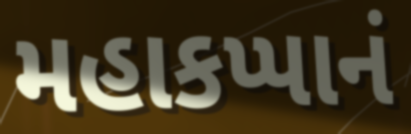
મહાકપ્પાનં